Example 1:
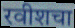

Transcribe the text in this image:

रवीशचा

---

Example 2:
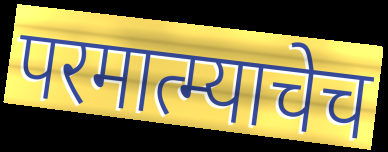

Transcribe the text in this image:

परमात्म्याचेच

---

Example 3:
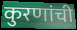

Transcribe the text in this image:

कुरणांची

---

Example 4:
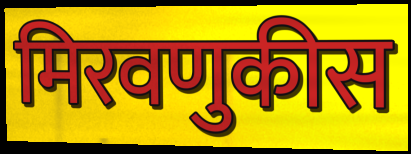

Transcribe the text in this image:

मिरवणुकीस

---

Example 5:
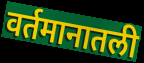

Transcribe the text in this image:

वर्तमानातली